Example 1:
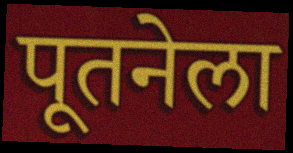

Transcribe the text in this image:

पूतनेला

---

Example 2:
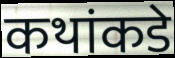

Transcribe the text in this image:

कथांकडे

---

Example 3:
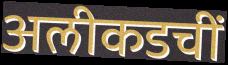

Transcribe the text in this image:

अलीकडचीं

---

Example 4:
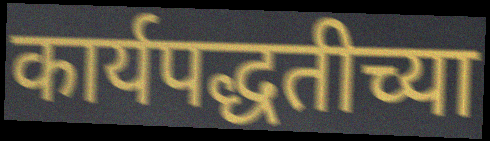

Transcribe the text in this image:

कार्यपद्धतीच्या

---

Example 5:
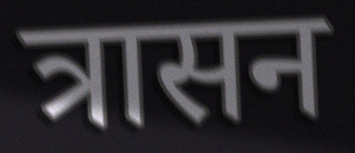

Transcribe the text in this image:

त्रासन